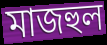
মাজহুল